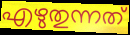
എഴുതുന്നത്